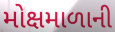
મોક્ષમાળાની